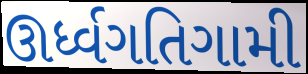
ઊર્ધ્વગતિગામી